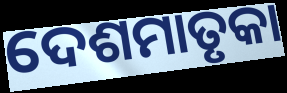
ଦେଶମାତୃକା